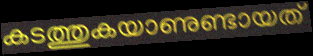
കടത്തുകയാണുണ്ടായത്